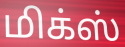
மிக்ஸ்